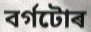
বৰ্গটোৰ